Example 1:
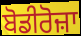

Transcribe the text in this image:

ਬੋਡੀਰੋਜ਼ਾ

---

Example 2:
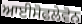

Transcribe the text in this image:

ਆਈਸੋਫਲੇਵੋਨ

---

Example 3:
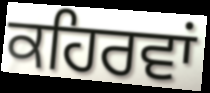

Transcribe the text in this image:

ਕਹਿਰਵਾਂ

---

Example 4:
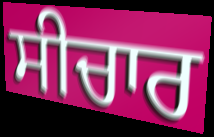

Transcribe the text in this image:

ਸੀਚਾਰ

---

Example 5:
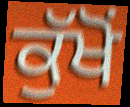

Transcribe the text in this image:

ਕੁੱਖੋਂ